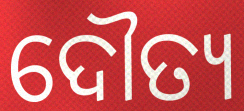
ଦୌତ୍ୟ